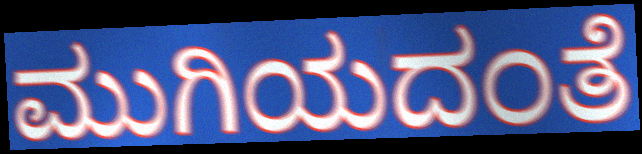
ಮುಗಿಯದಂತೆ